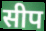
सीप